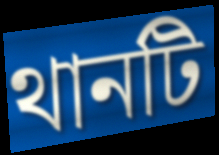
থানটি